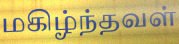
மகிழ்ந்தவள்